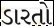
ડારતો